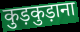
कुड़कुड़ाना